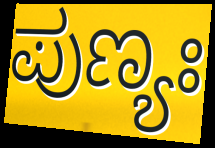
ಪುಣ್ಯಃ